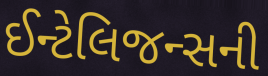
ઈન્ટેલિજન્સની